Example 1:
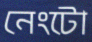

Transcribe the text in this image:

নেংটো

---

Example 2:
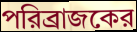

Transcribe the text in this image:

পরিব্রাজকের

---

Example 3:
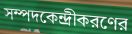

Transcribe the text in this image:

সম্পদকেন্দ্রীকরণের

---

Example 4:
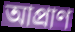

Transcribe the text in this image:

আপ্রাণ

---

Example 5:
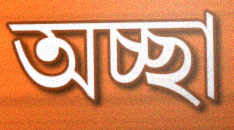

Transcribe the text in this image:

অচ্ছা